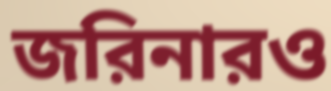
জরিনারও